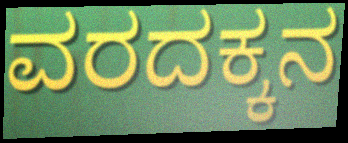
ವರದಕ್ಕನ